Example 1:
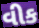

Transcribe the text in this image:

વીક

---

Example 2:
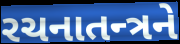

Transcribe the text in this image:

રચનાતન્ત્રને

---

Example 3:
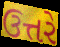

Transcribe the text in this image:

ઉત્તરે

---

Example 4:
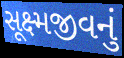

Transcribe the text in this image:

સૂક્ષ્મજીવનું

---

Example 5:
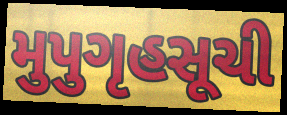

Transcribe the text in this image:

મુપુગૃહસૂચી